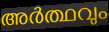
അർത്ഥവും